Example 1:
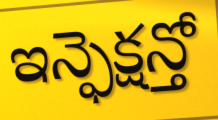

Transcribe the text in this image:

ఇన్ఫెక్షన్తో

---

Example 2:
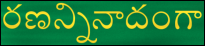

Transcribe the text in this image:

రణన్నినాదంగా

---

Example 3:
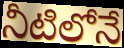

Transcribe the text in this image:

నీటిలోనే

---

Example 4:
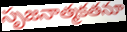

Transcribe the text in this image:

సృజనాత్మకతనూ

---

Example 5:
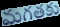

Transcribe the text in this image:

మగతకు